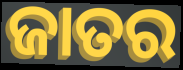
ଜାତର